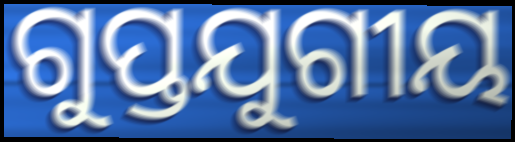
ଗୁପ୍ତଯୁଗୀୟ